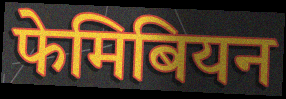
फेमिबियन